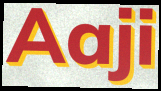
Aaji